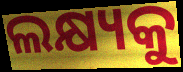
ଲକ୍ଷ୍ୟକୁ